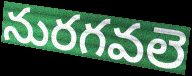
నురగవలె